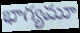
భాగ్యమూ